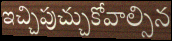
ఇచ్చిపుచ్చుకోవాల్సిన